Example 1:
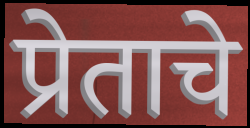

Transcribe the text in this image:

प्रेताचे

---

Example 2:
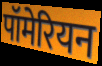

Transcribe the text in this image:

पॉमेरियन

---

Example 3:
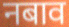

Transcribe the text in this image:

नबाव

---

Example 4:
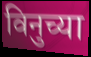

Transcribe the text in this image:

विनुच्या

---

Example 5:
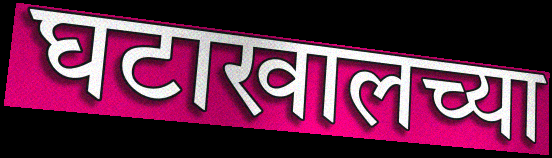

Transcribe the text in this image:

घटाखालच्या